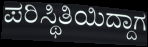
ಪರಿಸ್ಥಿತಿಯಿದ್ದಾಗ